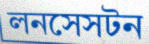
লনসেসটন